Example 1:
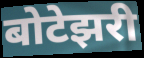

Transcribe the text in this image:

बोटेझरी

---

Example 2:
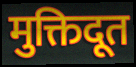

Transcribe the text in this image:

मुक्तिदूत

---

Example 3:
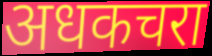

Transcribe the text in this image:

अधकचरा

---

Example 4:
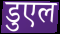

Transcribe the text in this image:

डुएल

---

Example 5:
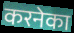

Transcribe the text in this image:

करनेका